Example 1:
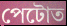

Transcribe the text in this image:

পেটোত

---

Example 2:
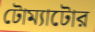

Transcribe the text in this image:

টোম্যাটোর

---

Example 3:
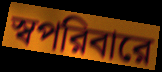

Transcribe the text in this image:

স্বপরিবারে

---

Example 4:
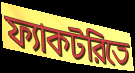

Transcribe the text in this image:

ফ্যাকটরিতে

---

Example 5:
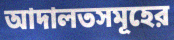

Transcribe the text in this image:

আদালতসমূহের